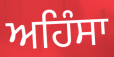
ਅਹਿੰਸਾ